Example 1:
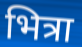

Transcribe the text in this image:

भित्रा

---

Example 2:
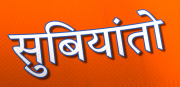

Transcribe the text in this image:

सुबियांतो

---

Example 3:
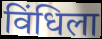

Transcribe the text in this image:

विंधिला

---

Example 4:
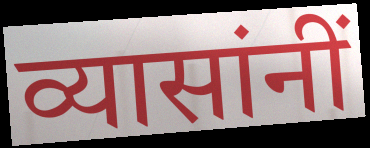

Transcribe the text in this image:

व्यासांनीं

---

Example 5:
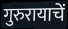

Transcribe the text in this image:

गुरुरायाचें